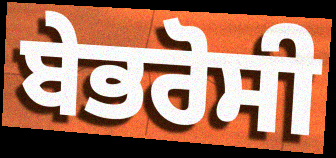
ਬੇਭਰੋਸੀ